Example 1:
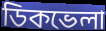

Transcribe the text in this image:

ডিকভেলা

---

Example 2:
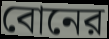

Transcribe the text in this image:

বোনের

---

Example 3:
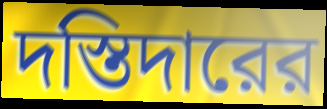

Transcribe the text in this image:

দস্তিদারের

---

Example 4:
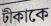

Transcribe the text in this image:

টীকাকে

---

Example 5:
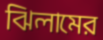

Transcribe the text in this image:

ঝিলামের